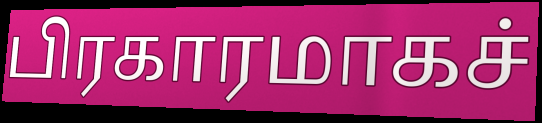
பிரகாரமாகச்